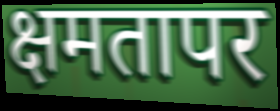
क्षमतापर